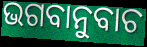
ଭଗବାନୁବାଚ